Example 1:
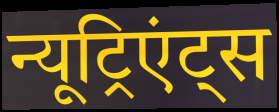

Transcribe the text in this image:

न्यूट्रिएंट्स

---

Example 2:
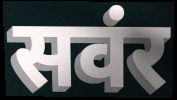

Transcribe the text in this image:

सवंर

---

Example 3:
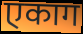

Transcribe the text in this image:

एकाग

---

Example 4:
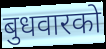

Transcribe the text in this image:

बुधवारको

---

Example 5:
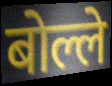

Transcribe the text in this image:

बोल्ले